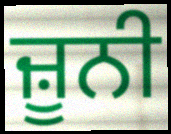
ਜ਼ੂਨੀ